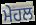
ਮੇਹਲ